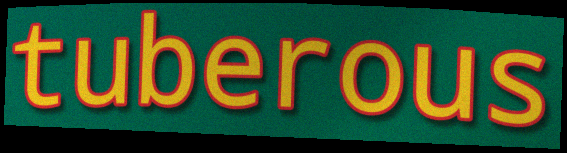
tuberous